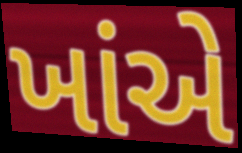
ખાંએ